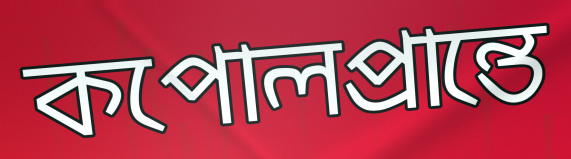
কপোলপ্রান্তে